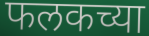
फलकच्या